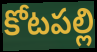
కోటపల్లి